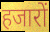
हजारों